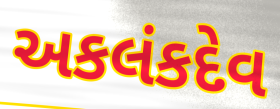
અકલંકદેવ